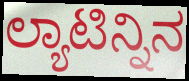
ಲ್ಯಾಟಿನ್ನಿನ